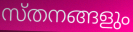
സ്തനങ്ങളും